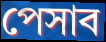
পেসাব